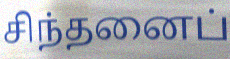
சிந்தனைப்